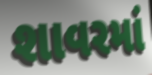
શાવરમાં